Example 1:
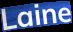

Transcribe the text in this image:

Laine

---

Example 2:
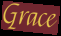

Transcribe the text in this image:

Grace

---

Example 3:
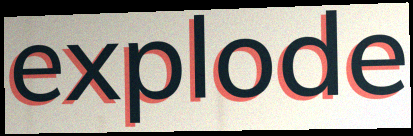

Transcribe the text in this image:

explode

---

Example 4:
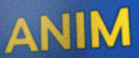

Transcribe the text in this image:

ANIM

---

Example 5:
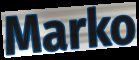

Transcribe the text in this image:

Marko